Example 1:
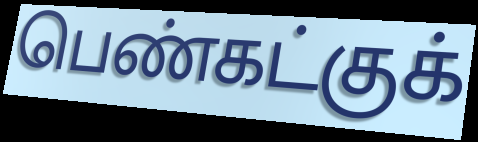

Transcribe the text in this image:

பெண்கட்குக்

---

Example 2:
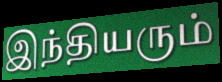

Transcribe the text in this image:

இந்தியரும்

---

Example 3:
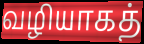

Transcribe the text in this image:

வழியாகத்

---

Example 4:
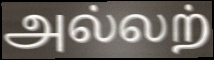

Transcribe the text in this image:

அல்லற்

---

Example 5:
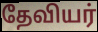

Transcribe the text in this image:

தேவியர்